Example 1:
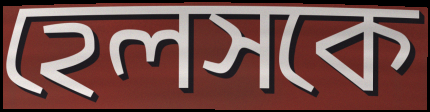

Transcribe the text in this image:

হেলসকে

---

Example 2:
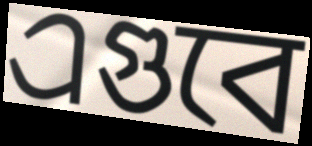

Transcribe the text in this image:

এগুবে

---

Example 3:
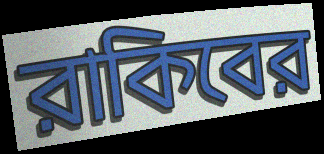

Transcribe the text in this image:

রাকিবের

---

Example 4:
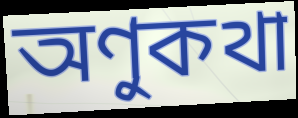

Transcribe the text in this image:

অণুকথা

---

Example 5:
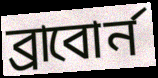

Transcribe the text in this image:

ব্রাবোর্ন